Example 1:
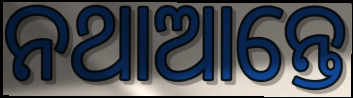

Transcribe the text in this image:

ନଥାଆନ୍ତେ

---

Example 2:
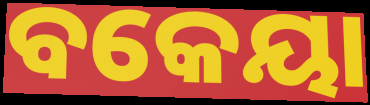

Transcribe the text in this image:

ବକେୟା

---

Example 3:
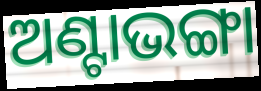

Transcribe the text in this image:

ଅଣ୍ଟାଭଙ୍ଗା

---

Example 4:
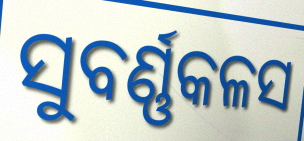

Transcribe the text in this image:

ସୁବର୍ଣ୍ଣକଳସ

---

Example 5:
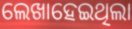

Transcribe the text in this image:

ଲେଖାହେଇଥିଲା